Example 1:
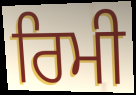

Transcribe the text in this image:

ਰਿਮੀ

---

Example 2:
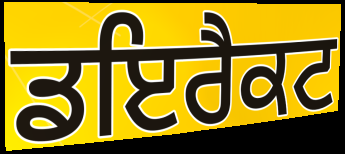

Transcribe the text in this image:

ਡਇਰੈਕਟ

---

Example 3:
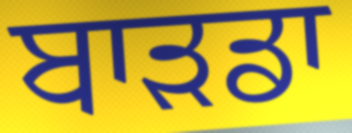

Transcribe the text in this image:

ਬਾੜਡਾ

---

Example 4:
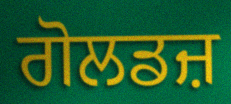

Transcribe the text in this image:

ਗੋਲਡਜ਼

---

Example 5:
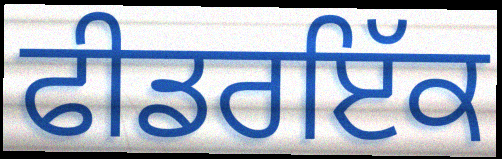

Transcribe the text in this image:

ਫੀਡਰਇੱਕ